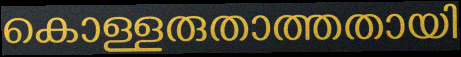
കൊള്ളരുതാത്തതായി